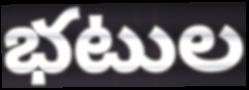
భటుల